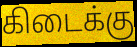
கிடைக்கு